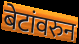
बेटांवरुन